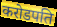
करोडपति